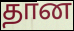
தான